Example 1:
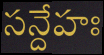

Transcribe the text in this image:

సన్దేహః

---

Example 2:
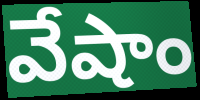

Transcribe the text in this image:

వేషాం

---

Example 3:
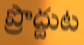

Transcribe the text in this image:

ప్రొద్దుట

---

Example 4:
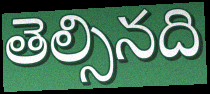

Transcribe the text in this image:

తెల్సినది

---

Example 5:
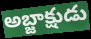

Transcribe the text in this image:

అబ్జాక్షుడు